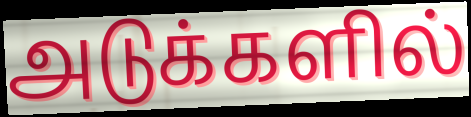
அடுக்களில்